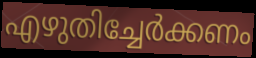
എഴുതിച്ചേർക്കണം